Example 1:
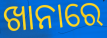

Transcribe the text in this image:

ଖାନାରେ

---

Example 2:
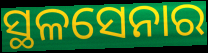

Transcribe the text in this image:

ସ୍ଥଳସେନାର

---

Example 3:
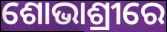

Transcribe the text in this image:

ଶୋଭାଶ୍ରୀରେ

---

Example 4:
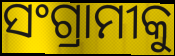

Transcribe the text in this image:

ସଂଗ୍ରାମୀକୁ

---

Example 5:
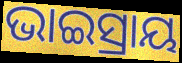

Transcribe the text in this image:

ଭାଇସ୍ରାୟ